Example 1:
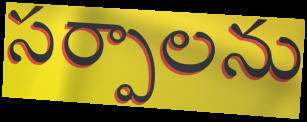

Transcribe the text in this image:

సర్పాలను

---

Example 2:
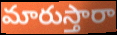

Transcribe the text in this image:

మారుస్తారా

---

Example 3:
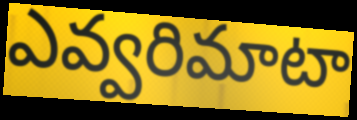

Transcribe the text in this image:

ఎవ్వరిమాటా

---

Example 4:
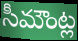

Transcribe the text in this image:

సీమౌంట్ల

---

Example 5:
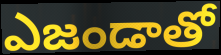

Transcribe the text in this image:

ఎజండాతో